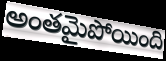
అంతమైపోయింది